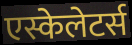
एस्केलेटर्स